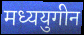
मध्ययुगीन